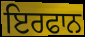
ਇਰਫਾਨ